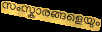
സംസ്കാരങ്ങളെയും